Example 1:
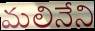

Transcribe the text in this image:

మలినేని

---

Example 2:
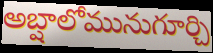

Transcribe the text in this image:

అబ్షాలోమునుగూర్చి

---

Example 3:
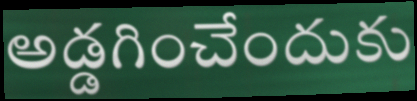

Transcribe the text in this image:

అడ్డగించేందుకు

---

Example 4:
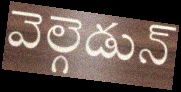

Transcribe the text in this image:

వెల్గెడున్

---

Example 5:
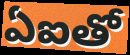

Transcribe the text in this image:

ఏఐతో